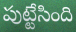
పుట్టేసింది